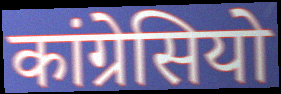
कांग्रेसियो